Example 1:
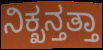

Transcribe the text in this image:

ನಿಕ್ಖನ್ತತ್ತಾ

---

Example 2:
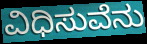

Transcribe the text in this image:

ವಿಧಿಸುವೆನು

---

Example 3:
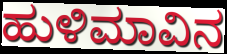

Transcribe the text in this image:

ಹುಳಿಮಾವಿನ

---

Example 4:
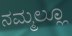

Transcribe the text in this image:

ನಮ್ಮಲ್ಲೂ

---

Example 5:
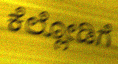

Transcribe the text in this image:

ಕೆಲ್ಲೋಡಿಗೆ